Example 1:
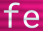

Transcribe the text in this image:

fe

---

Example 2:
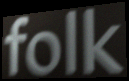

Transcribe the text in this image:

folk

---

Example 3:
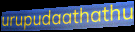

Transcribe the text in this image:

urupudaathathu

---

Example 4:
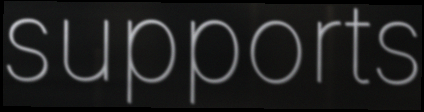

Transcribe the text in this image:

supports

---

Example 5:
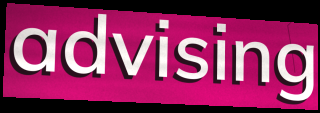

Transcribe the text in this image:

advising